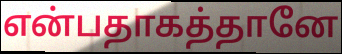
என்பதாகத்தானே